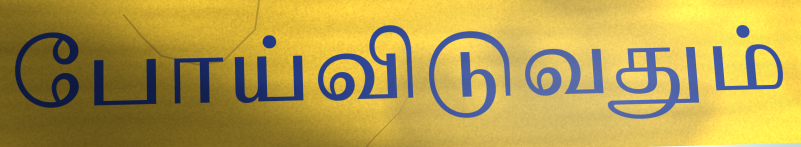
போய்விடுவதும்